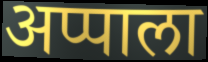
अप्पाला